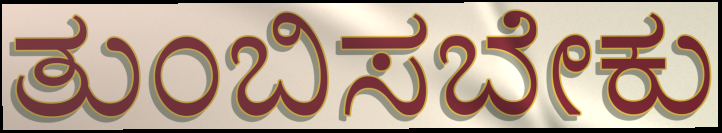
ತುಂಬಿಸಬೇಕು